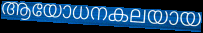
ആയോധനകലയായ